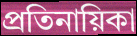
প্রতিনায়িকা